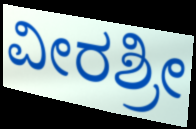
ವೀರಶ್ರೀ